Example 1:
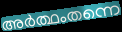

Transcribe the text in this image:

അർത്ഥംതന്നെ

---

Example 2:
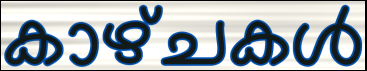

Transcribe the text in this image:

കാഴ്‌ചകൾ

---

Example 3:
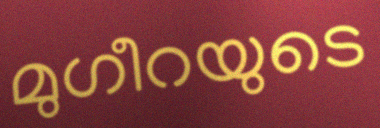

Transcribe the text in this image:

മുഗീറയുടെ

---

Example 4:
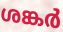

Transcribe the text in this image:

ശങ്കർ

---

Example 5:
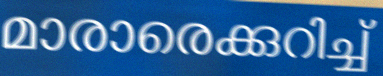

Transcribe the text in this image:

മാരാരെക്കുറിച്ച്